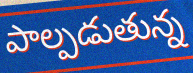
పాల్పడుతున్న